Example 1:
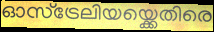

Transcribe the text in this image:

ഓസ്ട്രേലിയയ്ക്കെതിരെ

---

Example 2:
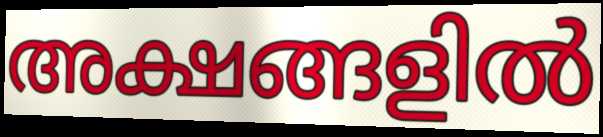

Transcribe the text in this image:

അക്ഷങ്ങളിൽ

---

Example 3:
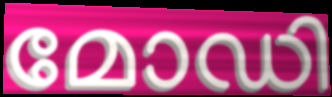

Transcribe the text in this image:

മോഡി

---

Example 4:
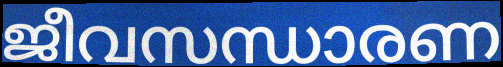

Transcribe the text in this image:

ജീവസന്ധാരണ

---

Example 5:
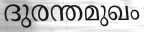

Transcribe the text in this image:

ദുരന്തമുഖം